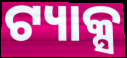
ଟ୍ୟାକ୍ସ